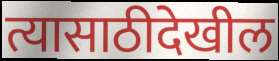
त्यासाठीदेखील